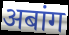
अबांग